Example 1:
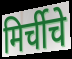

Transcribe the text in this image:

मिर्चीचे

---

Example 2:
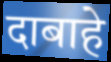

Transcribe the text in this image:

दाबाहे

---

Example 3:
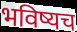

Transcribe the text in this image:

भविष्यच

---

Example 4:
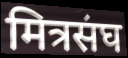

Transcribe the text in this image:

मित्रसंघ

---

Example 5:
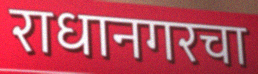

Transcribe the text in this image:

राधानगरचा